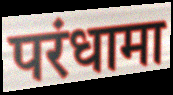
परंधामा